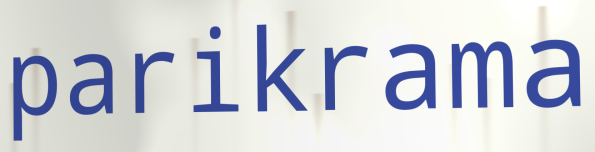
parikrama